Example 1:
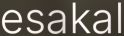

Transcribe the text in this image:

esakal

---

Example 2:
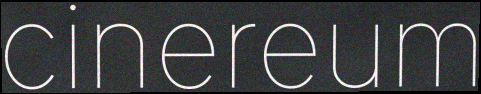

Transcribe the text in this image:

cinereum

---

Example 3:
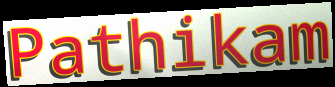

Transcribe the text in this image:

Pathikam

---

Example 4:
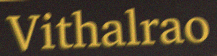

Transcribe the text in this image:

Vithalrao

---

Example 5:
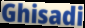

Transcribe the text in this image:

Ghisadi